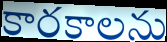
కారకాలను